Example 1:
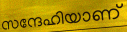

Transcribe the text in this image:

സന്ദേഹിയാണ്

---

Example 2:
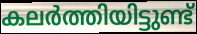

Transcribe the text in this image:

കലർത്തിയിട്ടുണ്ട്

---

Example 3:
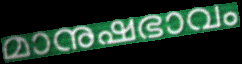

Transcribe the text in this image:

മാനുഷഭാവം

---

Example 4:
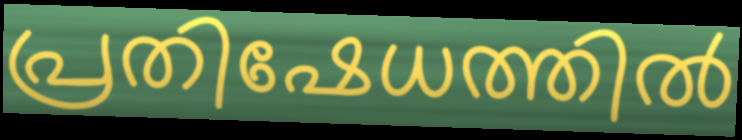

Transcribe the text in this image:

പ്രതിഷേധത്തിൽ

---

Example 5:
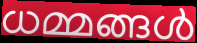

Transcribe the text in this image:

ധമ്മങ്ങൾ